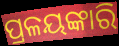
ପ୍ରଳୟଙ୍କାରି